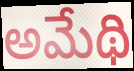
అమేథి